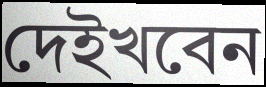
দেইখবেন